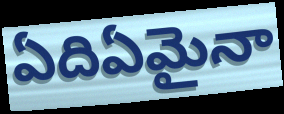
ఏదిఏమైనా